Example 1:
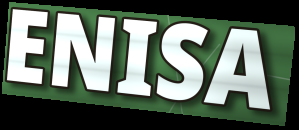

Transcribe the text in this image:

ENISA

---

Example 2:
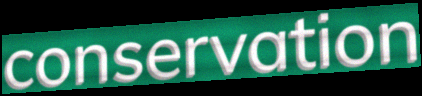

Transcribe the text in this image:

conservation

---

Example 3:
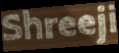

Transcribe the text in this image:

Shreeji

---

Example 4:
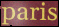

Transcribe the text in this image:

paris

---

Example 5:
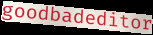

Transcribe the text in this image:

goodbadeditor